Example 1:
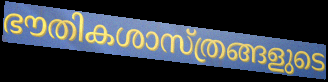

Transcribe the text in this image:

ഭൗതികശാസ്ത്രങ്ങളുടെ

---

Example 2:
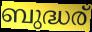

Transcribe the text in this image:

ബുദ്ധര്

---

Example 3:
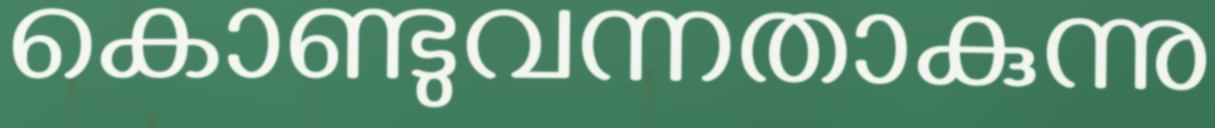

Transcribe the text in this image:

കൊണ്ടുവന്നതാകുന്നു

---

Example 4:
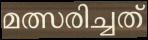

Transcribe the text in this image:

മത്സരിച്ചത്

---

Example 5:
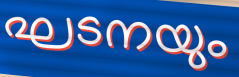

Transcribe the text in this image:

ഘടനയും